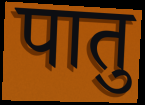
पातु